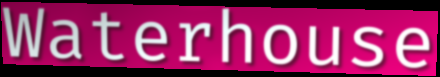
Waterhouse